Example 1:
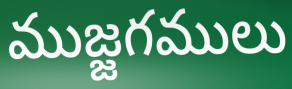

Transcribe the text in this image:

ముజ్జగములు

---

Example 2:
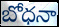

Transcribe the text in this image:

బోధనా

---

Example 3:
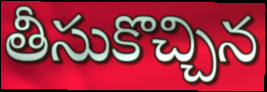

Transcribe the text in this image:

తీసుకొచ్చిన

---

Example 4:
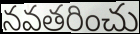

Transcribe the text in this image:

నవతరించు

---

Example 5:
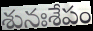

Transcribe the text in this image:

శునఃశేపం